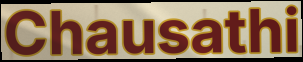
Chausathi